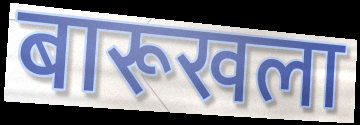
बारूखला